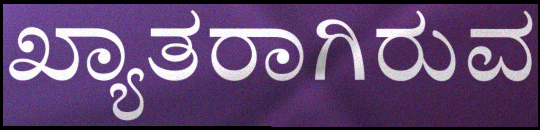
ಖ್ಯಾತರಾಗಿರುವ